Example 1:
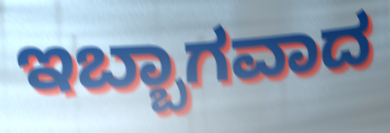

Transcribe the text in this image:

ಇಬ್ಬಾಗವಾದ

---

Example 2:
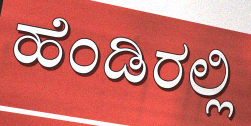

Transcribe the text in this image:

ಹೆಂಡಿರಲ್ಲಿ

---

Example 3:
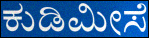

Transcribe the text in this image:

ಕುಡಿಮೀಸೆ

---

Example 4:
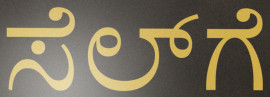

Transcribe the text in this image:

ಸೆಲ್‍ಗೆ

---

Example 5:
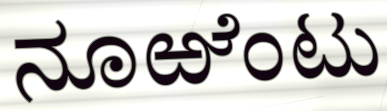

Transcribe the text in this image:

ನೂಱೆಂಟು